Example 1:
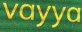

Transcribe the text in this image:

vayya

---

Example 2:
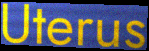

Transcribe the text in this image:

Uterus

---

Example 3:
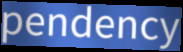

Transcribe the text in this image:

pendency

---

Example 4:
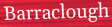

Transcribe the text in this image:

Barraclough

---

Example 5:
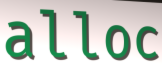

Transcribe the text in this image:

alloc